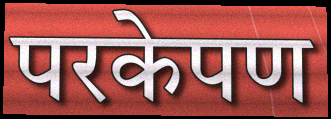
परकेपण